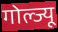
गोल्ज्यू